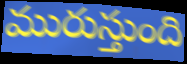
మురుస్తుంది